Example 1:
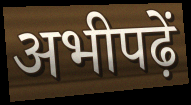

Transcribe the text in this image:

अभीपढ़ें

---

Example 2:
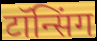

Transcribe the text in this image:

टॉन्सिंग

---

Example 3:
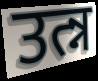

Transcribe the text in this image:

उत्न्न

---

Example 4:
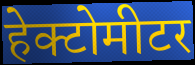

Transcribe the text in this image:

हेक्टोमीटर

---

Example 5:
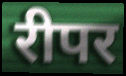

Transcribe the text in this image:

रीपर